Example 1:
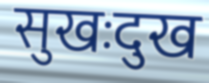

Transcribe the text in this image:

सुखःदुख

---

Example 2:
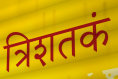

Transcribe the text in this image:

त्रिशतकं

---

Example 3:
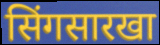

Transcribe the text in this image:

सिंगसारखा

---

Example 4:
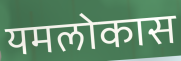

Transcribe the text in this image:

यमलोकास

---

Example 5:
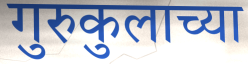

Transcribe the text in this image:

गुरुकुलाच्या